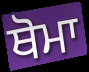
ਥੋਮਾ